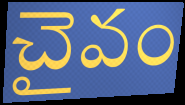
చైవం